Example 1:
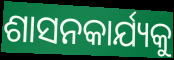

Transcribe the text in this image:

ଶାସନକାର୍ଯ୍ୟକୁ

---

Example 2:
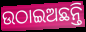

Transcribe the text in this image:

ଉଠାଇଅଛନ୍ତି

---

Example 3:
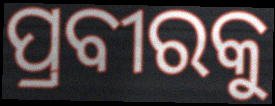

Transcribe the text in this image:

ପ୍ରବୀରକୁ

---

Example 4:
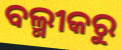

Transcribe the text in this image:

ବଲ୍ମୀକରୁ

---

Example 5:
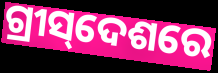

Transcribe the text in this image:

ଗ୍ରୀସ୍‌ଦେଶରେ